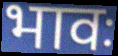
भावः